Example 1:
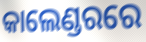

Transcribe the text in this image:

କାଲେଣ୍ଡରରେ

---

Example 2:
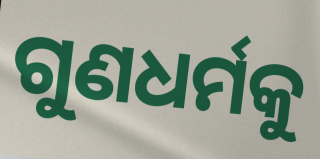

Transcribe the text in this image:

ଗୁଣଧର୍ମକୁ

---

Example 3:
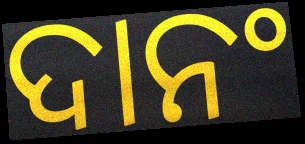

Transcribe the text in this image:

ଦାନଂ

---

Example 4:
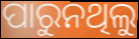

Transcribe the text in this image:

ପାରୁନଥିଲୁ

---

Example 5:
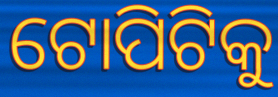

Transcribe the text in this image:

ଟୋପିଟିକୁ